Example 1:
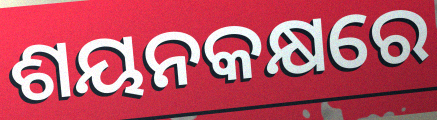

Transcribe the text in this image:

ଶୟନକକ୍ଷରେ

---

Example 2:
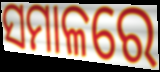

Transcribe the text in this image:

ସମାଳରେ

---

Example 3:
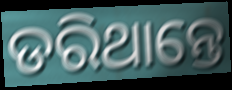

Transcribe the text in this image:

ଡରିଥାନ୍ତେ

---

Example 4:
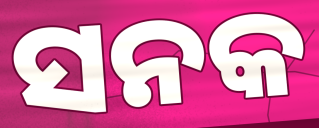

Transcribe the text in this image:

ସନକ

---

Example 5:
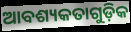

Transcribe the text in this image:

ଆବଶ୍ୟକତାଗୁଡ଼ିକ